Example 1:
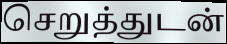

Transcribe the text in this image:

செறுத்துடன்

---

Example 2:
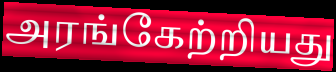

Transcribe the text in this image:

அரங்கேற்றியது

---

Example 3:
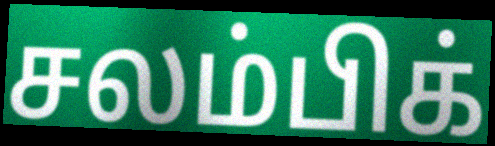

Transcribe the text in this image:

சலம்பிக்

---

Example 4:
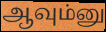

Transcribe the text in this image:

ஆவும்னு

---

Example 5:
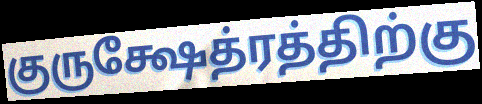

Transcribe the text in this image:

குருக்ஷேத்ரத்திற்கு